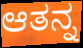
ಆತನ್ನ